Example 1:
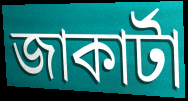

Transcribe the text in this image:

জাকাৰ্টা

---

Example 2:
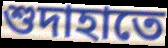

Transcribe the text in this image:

শুদাহাতে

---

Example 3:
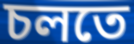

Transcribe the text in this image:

চলতে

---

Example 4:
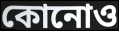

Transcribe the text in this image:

কোনোও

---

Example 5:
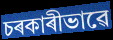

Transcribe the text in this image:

চৰকাৰীভাৱে